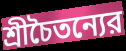
শ্রীচৈতন্যের